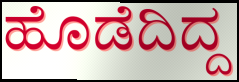
ಹೊಡೆದಿದ್ದ